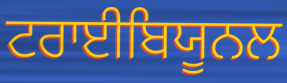
ਟਰਾਈਬਿਯੂਨਲ